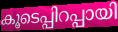
കൂടെപ്പിറപ്പായി